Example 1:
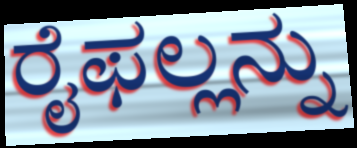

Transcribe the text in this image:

ರೈಫಲ್ಲನ್ನು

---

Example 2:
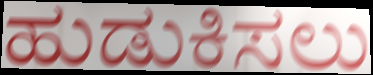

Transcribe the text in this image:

ಹುಡುಕಿಸಲು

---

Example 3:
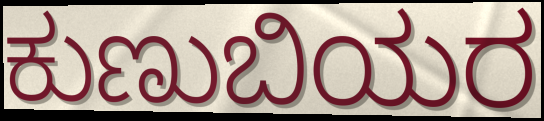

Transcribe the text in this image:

ಕುಣುಬಿಯರ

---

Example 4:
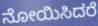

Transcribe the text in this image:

ನೋಯಿಸಿದರೆ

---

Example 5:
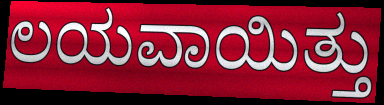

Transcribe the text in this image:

ಲಯವಾಯಿತ್ತು